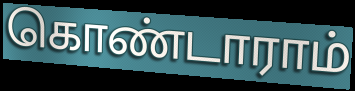
கொண்டாராம்